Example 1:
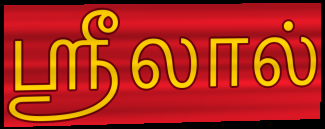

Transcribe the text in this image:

ஸ்ரீலால்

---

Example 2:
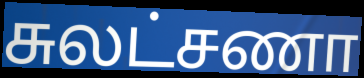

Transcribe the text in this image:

சுலட்சணா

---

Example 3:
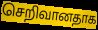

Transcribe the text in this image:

செறிவானதாக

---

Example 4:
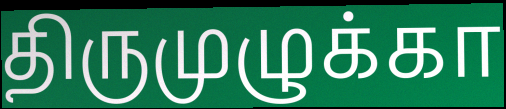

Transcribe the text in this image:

திருமுழுக்கா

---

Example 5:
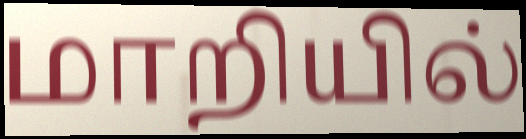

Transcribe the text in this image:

மாறியில்